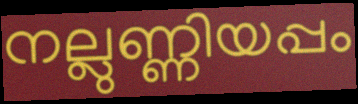
നല്ലുണ്ണിയപ്പം